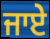
ਜਾਏੇ